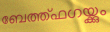
ബേത്ത്ഫഗയ്ക്കും